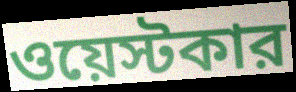
ওয়েস্টকার